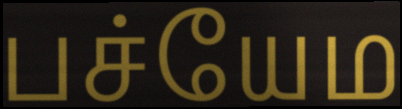
பச்யேம